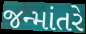
જન્માંતરે